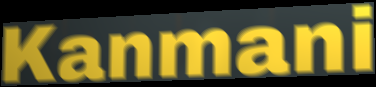
Kanmani